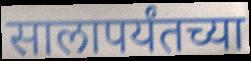
सालापर्यंतच्या